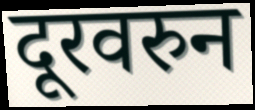
दूरवरुन